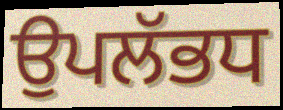
ਉਪਲੱਭਧ